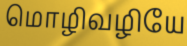
மொழிவழியே